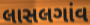
લાસલગાંવ